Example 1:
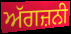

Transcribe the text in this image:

ਅੱਗਜ਼ਨੀ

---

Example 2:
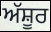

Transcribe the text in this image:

ਅੱਸ਼ੂਰ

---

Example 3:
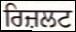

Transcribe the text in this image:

ਰਿਜ਼ਲਟ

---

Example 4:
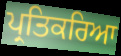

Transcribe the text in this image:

ਪ੍ਰਤਿਕਰਿਆ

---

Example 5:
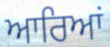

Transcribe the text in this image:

ਆਰਿਆਂ